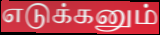
எடுக்கனும்